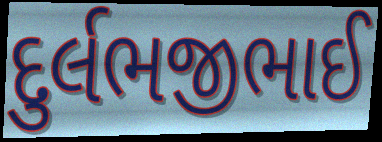
દુર્લભજીભાઈ